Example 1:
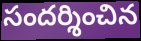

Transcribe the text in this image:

సందర్శించిన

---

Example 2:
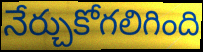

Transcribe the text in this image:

నేర్చుకోగలిగింది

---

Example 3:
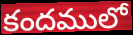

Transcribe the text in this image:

కందములో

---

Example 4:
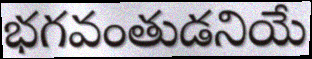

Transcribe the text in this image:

భగవంతుడనియే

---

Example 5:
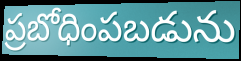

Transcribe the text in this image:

ప్రబోధింపబడును